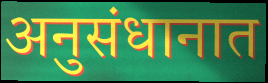
अनुसंधानात